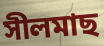
সীলমাছ